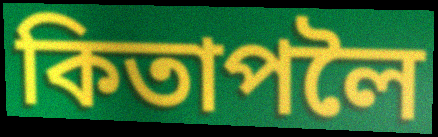
কিতাপলৈ